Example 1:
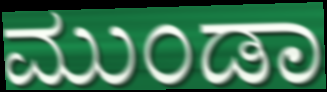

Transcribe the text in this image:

ಮುಂಡಾ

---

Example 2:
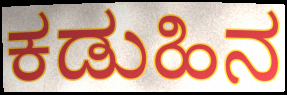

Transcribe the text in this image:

ಕಡುಹಿನ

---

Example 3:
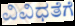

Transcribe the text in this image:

ವಿವಿಧತೆಗೆ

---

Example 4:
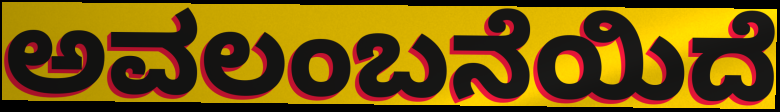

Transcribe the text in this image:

ಅವಲಂಬನೆಯಿದೆ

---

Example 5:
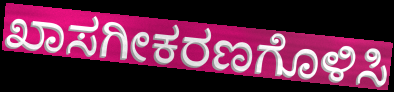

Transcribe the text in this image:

ಖಾಸಗೀಕರಣಗೊಳಿಸಿ